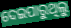
ଦେଇପାରୁଥିଲୁ